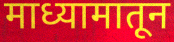
माध्यामातून